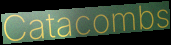
Catacombs